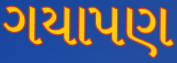
ગયાપણ